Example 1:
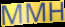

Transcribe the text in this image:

MMH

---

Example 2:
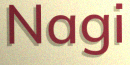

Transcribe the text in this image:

Nagi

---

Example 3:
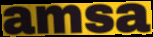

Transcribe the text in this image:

amsa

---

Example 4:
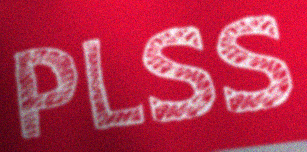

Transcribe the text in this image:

PLSS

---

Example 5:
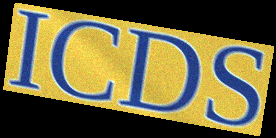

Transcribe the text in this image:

ICDS